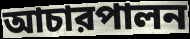
আচারপালন